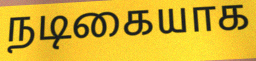
நடிகையாக